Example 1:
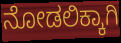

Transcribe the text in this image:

ನೋಡಲಿಕ್ಕಾಗಿ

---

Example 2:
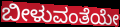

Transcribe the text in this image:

ಬೀಳುವಂತೆಯೇ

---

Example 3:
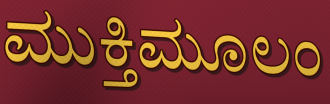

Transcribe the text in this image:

ಮುಕ್ತಿಮೂಲಂ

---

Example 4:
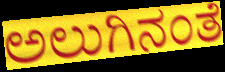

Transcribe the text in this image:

ಅಲುಗಿನಂತೆ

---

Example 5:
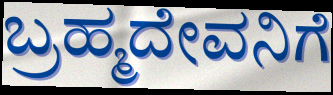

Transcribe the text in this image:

ಬ್ರಹ್ಮದೇವನಿಗೆ